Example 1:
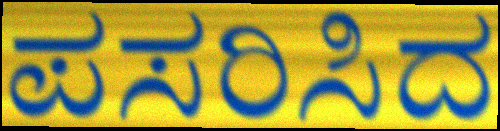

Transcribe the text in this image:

ಪಸರಿಸಿದ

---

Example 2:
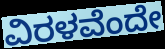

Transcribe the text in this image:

ವಿರಳವೆಂದೇ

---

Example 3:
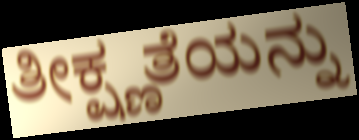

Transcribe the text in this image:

ತೀಕ್ಷ್ಣತೆಯನ್ನು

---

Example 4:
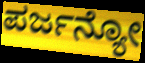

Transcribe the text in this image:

ಪರ್ಜನ್ಯೋ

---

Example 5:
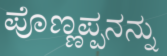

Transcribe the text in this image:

ಪೊಣ್ಣಪ್ಪನನ್ನು